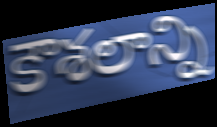
కౌశలాన్ని